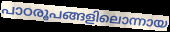
പാഠരൂപങ്ങളിലൊന്നായ